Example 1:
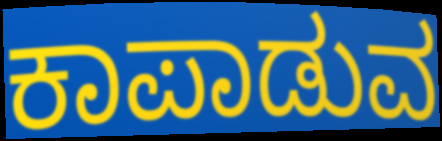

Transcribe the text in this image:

ಕಾಪಾಡುವ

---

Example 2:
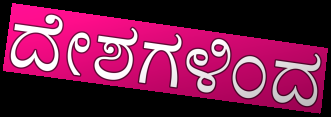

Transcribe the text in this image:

ದೇಶಗಳಿಂದ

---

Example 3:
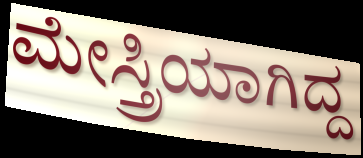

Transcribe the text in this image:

ಮೇಸ್ತ್ರಿಯಾಗಿದ್ದ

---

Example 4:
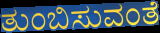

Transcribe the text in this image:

ತುಂಬಿಸುವಂತೆ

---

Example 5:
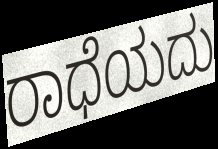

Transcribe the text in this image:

ರಾಧೆಯದು